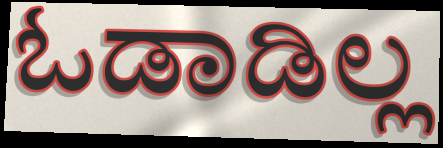
ಓಡಾಡಿಲ್ಲ